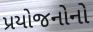
પ્રયોજનોનો